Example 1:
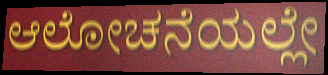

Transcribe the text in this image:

ಆಲೋಚನೆಯಲ್ಲೇ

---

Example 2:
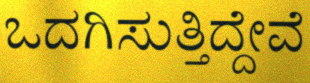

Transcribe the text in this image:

ಒದಗಿಸುತ್ತಿದ್ದೇವೆ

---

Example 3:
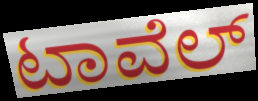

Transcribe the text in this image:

ಟಾವೆಲ್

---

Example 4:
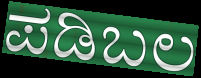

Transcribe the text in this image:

ಪಡಿಬಲ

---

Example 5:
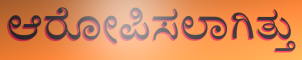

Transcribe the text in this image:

ಆರೋಪಿಸಲಾಗಿತ್ತು